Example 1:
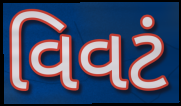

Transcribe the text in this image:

વિવટં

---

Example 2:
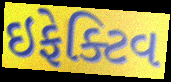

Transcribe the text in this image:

ઇફેક્ટિવ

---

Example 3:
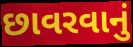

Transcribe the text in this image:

છાવરવાનું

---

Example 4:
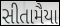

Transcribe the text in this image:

સીતામૈયા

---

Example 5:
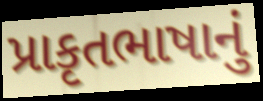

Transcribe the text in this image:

પ્રાકૃતભાષાનું